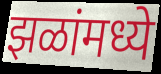
झळांमध्ये